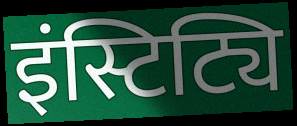
इंस्टिट्यि